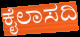
ಕೈಲಾಸದಿ